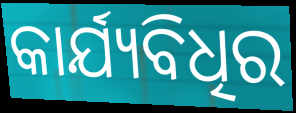
କାର୍ଯ୍ୟବିଧିର